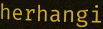
herhangi